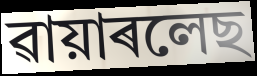
ৱায়াৰলেছ